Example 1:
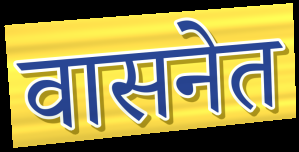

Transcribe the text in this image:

वासनेत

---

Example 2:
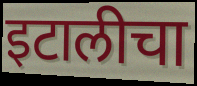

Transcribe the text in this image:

इटालीचा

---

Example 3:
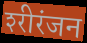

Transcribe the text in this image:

श्रीरंजन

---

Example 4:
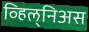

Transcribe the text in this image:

व्हिल्निअस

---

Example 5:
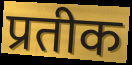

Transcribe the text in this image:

प्रतीक